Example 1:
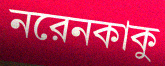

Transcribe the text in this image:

নরেনকাকু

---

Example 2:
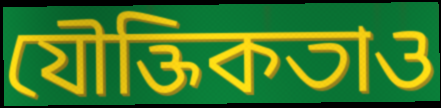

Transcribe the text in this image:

যৌক্তিকতাও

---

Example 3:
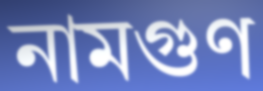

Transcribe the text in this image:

নামগুণ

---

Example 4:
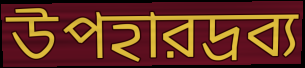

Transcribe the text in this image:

উপহারদ্রব্য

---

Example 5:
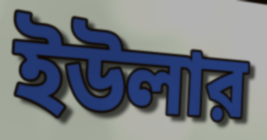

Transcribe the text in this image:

ইউলার